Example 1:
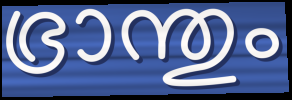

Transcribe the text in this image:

ഭ്രാന്തും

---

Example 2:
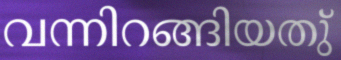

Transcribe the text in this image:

വന്നിറങ്ങിയതു്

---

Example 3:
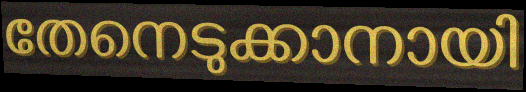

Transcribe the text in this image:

തേനെടുക്കാനായി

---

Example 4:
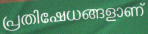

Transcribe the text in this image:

പ്രതിഷേധങ്ങളാണ്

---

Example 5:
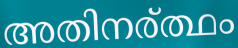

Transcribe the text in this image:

അതിനര്ത്ഥം